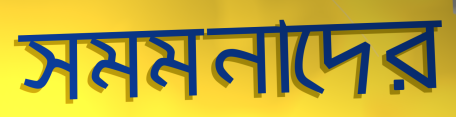
সমমনাদের